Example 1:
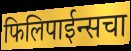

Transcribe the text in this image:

फिलिपाईन्सचा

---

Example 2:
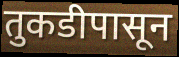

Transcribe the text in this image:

तुकडीपासून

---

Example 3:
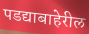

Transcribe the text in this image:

पडद्याबाहेरील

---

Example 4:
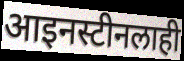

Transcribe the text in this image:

आइनस्टीनलाही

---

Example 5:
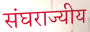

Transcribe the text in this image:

संघराज्यीय